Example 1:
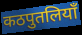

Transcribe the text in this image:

कठपुतलियाँ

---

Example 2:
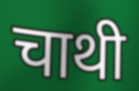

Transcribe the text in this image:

चाथी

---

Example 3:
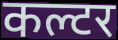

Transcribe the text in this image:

कल्टर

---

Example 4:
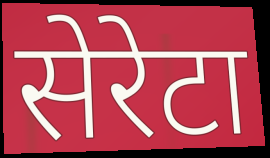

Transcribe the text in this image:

सेरेटा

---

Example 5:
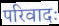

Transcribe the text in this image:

परिवादः